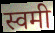
स्वमी